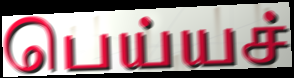
பெய்யச்